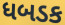
ધબડક